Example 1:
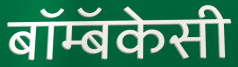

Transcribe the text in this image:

बॉम्बॅकेसी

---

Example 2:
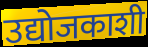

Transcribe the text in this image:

उद्योजकाशी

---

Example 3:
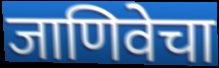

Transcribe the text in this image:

जाणिवेचा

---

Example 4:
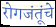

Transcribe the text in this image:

रोगजंतूंचे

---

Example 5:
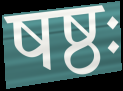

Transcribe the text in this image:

षष्ठः